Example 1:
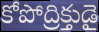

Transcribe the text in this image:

కోపోద్రిక్తుడై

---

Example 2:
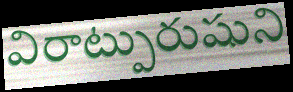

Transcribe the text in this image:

విరాట్పురుషుని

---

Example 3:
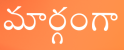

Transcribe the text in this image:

మార్గంగా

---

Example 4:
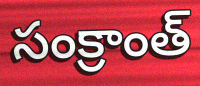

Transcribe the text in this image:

సంక్రాంత్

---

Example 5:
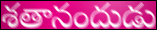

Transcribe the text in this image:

శతానందుడు